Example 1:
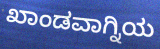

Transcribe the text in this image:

ಖಾಂಡವಾಗ್ನಿಯ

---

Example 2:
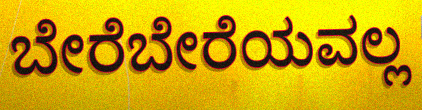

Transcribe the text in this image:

ಬೇರೆಬೇರೆಯವಲ್ಲ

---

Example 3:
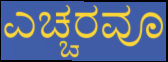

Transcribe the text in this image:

ಎಚ್ಚರವೂ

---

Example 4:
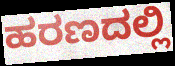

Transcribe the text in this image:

ಹರಣದಲ್ಲಿ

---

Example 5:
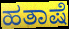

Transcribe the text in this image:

ಹತಾಷೆ